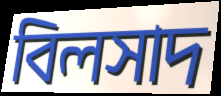
বিলসাদ